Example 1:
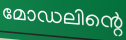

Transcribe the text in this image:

മോഡലിന്റെ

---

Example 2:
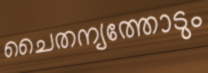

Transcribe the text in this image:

ചൈതന്യത്തോടും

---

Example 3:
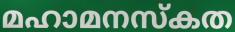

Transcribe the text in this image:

മഹാമനസ്കത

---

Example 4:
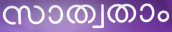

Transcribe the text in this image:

സാത്വതാം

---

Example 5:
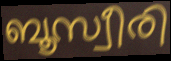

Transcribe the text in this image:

ബൂസ്വീരി